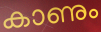
കാണും